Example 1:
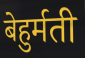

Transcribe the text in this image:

बेहुर्मती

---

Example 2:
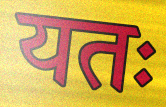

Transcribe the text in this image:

यतः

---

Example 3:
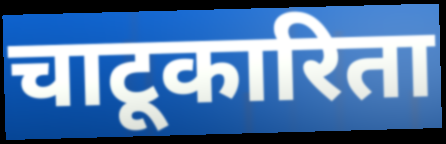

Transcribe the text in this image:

चाटूकारिता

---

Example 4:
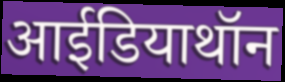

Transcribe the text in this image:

आईडियाथॉन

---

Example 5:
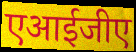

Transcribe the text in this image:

एआईजीए